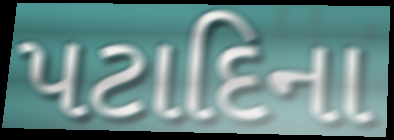
પટાદિના